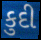
કુદી